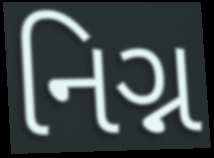
નિગ્ન